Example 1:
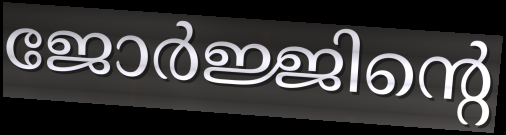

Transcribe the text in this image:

ജോർജ്ജിന്റെ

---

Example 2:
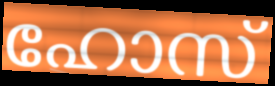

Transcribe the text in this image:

ഹോസ്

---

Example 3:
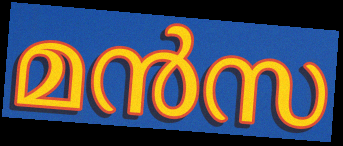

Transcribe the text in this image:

മൻസ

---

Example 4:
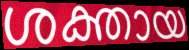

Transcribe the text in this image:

ശക്തായ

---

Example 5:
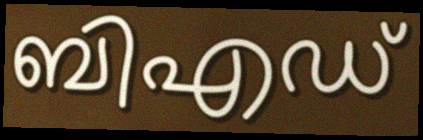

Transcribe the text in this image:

ബിഎഡ്